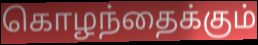
கொழந்தைக்கும்